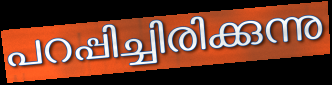
പറപ്പിച്ചിരിക്കുന്നു